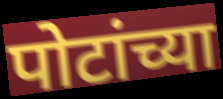
पोटांच्या